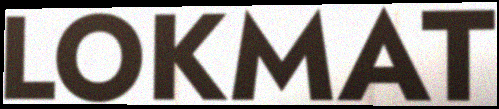
LOKMAT